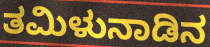
ತಮಿಳುನಾಡಿನ